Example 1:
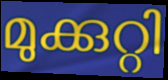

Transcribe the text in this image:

മുക്കുറ്റി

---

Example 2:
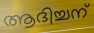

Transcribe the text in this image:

ആദിച്ചന്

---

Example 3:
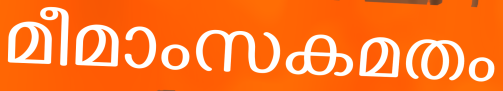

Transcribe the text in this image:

മീമാംസകമതം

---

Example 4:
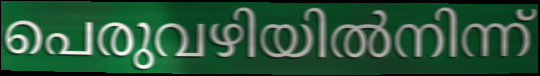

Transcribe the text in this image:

പെരുവഴിയിൽനിന്ന്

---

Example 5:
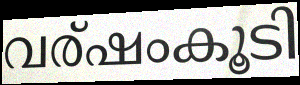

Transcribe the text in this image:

വര്ഷംകൂടി